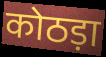
कोठड़ा